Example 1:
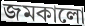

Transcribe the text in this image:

জমকালো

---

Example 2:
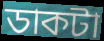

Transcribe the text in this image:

ডাকটা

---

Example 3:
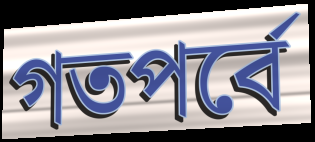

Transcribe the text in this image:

গতপর্বে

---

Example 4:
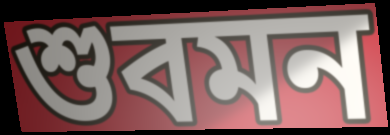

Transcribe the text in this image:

শুবমন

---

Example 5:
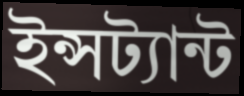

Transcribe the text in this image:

ইন্সট্যান্ট